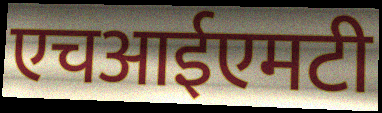
एचआईएमटी